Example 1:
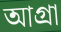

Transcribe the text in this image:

আগ্রা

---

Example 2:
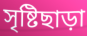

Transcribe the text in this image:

সৃষ্টিছাড়া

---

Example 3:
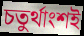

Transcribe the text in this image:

চতুর্থাংশই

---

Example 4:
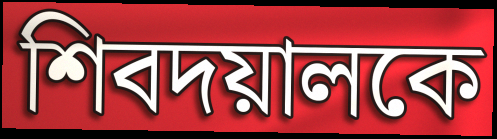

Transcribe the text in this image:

শিবদয়ালকে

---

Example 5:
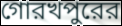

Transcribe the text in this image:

গোরখপুরের